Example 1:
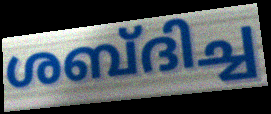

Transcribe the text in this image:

ശബ്ദിച്ച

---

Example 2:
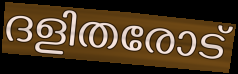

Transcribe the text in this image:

ദളിതരോട്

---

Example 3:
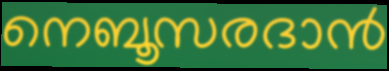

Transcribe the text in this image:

നെബൂസരദാൻ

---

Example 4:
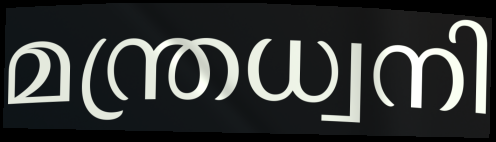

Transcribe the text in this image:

മന്ത്രധ്വനി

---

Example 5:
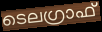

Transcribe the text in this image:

ടെലഗ്രാഫ്